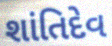
શાંતિદેવ